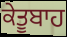
ਕੇਤੂਬਾਹ